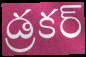
డ్రకర్